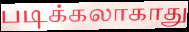
படிக்கலாகாது